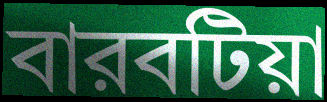
বারবটিয়া